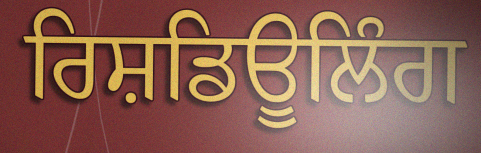
ਰਿਸ਼ਡਿਊਲਿੰਗ